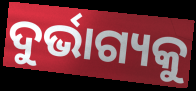
ଦୁର୍ଭାଗ୍ୟକୁ